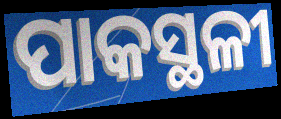
ପାକସ୍ଥଳୀ